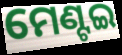
ମେଣ୍ଟଇ